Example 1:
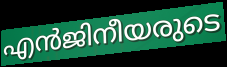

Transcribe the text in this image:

എൻജിനീയരുടെ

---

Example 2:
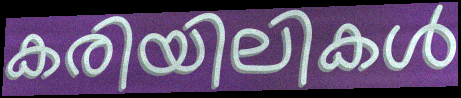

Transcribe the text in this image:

കരിയിലികൾ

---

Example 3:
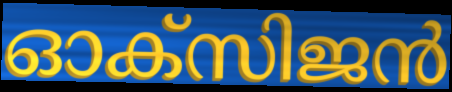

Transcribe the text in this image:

ഓക്സിജൻ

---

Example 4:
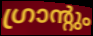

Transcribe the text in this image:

ഗ്രാന്റും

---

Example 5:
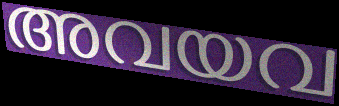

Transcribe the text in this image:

അവയവ